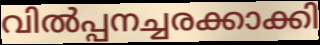
വിൽപ്പനച്ചരക്കാക്കി